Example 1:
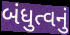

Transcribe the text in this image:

બંધુત્વનું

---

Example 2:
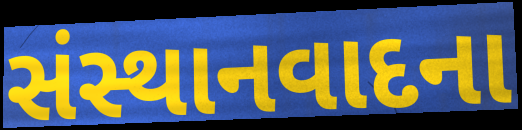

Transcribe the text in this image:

સંસ્થાનવાદના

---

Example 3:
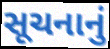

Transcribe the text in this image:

સૂચનાનું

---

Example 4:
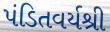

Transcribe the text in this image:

પંડિતવર્યશ્રી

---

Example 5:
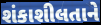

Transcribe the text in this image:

શંકાશીલતાને